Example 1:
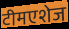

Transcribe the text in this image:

टीमएशेज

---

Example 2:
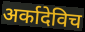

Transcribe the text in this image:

अर्कादेविच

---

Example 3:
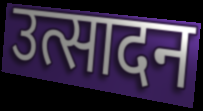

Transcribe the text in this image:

उत्सादन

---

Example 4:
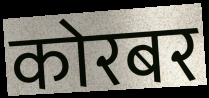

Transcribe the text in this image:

कोरबर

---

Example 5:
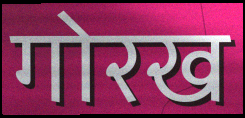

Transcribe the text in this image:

गोरख